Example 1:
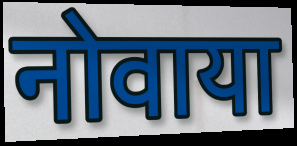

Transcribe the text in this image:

नोवाया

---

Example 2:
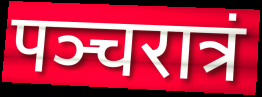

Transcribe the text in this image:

पञ्चरात्रं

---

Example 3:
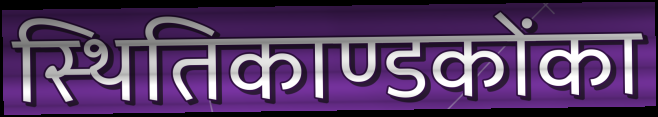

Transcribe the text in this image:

स्थितिकाण्डकोंका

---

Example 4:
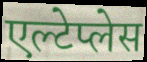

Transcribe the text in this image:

एल्टेप्लेस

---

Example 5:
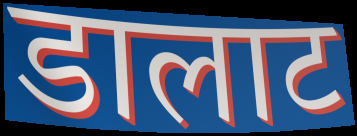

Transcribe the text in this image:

डालाट